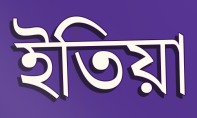
ইতিয়া